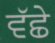
ਵੱਛੇ